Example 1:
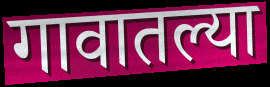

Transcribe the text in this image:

गावातल्या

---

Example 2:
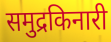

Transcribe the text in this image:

समुद्रकिनारी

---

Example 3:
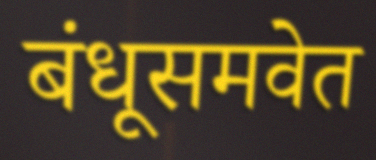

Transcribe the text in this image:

बंधूसमवेत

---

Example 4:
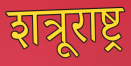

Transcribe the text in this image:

शत्रूराष्ट्र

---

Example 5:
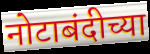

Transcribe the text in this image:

नोटाबंदीच्या